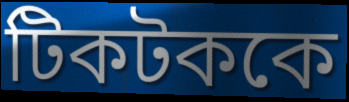
টিকটককে